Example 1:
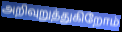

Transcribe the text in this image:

அறிவுறுத்துகிறோம்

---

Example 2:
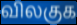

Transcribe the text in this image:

விலகுக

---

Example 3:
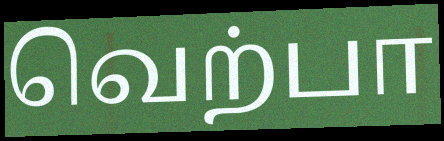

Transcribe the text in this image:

வெற்பா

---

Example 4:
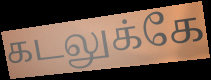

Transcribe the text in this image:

கடலுக்கே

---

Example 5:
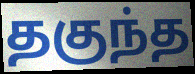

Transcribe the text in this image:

தகுந்த